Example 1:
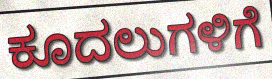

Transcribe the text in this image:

ಕೂದಲುಗಳಿಗೆ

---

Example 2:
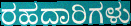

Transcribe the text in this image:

ರಹದಾರಿಗಳು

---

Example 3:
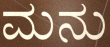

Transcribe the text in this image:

ಮನು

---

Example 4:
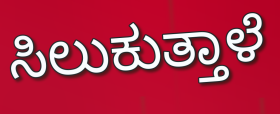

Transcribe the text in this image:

ಸಿಲುಕುತ್ತಾಳೆ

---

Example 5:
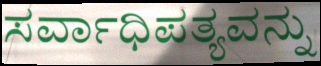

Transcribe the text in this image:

ಸರ್ವಾಧಿಪತ್ಯವನ್ನು